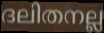
ദലിതനല്ല